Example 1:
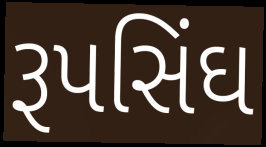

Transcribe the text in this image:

રૂપસિંઘ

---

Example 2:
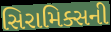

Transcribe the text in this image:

સિરામિક્સની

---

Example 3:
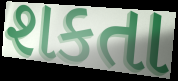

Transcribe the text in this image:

શકતા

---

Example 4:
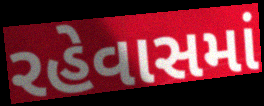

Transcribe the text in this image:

રહેવાસમાં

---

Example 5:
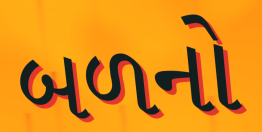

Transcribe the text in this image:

બળનો